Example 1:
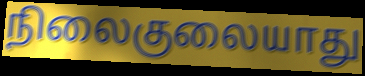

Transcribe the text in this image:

நிலைகுலையாது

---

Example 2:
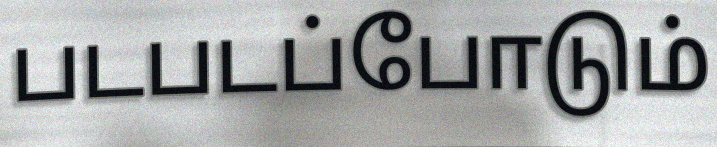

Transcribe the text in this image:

படபடப்போடும்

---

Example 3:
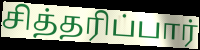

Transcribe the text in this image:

சித்தரிப்பார்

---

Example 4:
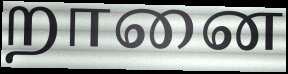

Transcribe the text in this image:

றானை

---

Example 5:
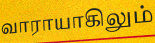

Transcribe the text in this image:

வாராயாகிலும்